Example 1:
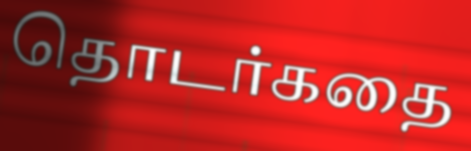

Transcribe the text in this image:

தொடர்கதை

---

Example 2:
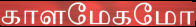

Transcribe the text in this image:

காளமேகமோ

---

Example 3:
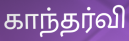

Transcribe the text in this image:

காந்தர்வி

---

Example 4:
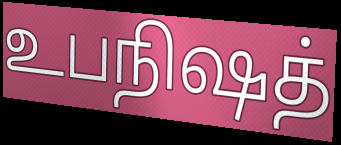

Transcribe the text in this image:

உபநிஷத்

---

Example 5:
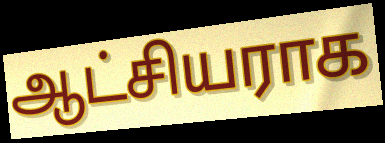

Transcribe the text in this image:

ஆட்சியராக